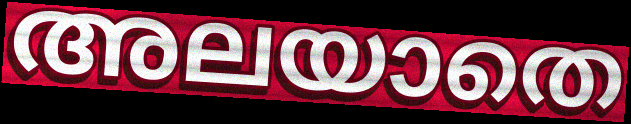
അലയാതെ